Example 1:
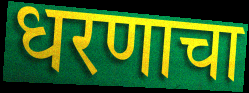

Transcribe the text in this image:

धरणाचा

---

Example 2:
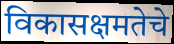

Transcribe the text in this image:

विकासक्षमतेचे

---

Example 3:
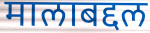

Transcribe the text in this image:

मालाबद्दल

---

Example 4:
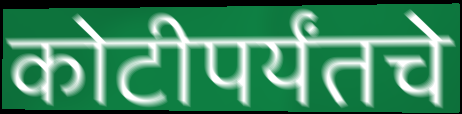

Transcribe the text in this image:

कोटीपर्यंतचे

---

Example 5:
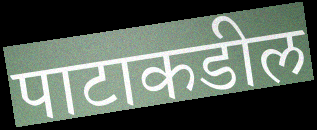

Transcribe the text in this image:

पाटाकडील